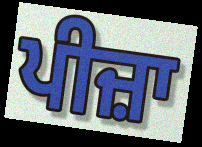
ਪੀਜ਼ਾ